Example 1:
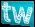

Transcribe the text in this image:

tw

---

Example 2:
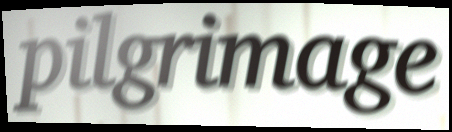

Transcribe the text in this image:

pilgrimage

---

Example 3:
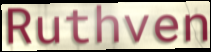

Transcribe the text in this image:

Ruthven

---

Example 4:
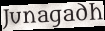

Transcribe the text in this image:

Junagadh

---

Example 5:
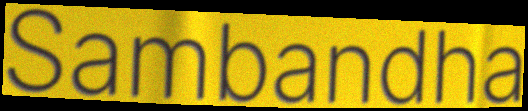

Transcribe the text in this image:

Sambandha